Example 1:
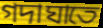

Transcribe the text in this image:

গদাঘাতে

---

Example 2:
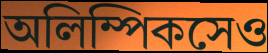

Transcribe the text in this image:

অলিম্পিকসেও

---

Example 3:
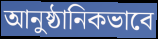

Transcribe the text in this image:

আনুষ্ঠানিকভাবে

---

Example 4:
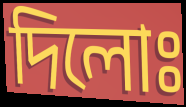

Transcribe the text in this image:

দিলোঃ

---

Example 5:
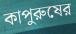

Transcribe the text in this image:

কাপুরুষের